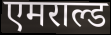
एमराल्ड